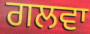
ਗਲਵਾ